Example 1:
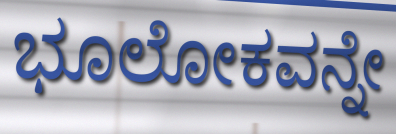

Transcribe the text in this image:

ಭೂಲೋಕವನ್ನೇ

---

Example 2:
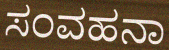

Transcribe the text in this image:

ಸಂವಹನಾ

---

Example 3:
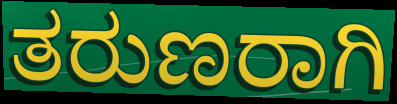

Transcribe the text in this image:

ತರುಣರಾಗಿ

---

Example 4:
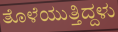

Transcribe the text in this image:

ತೊಳೆಯುತ್ತಿದ್ದಳು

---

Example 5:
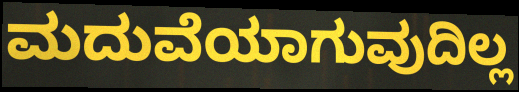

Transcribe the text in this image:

ಮದುವೆಯಾಗುವುದಿಲ್ಲ